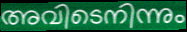
അവിടെനിന്നും